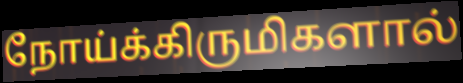
நோய்க்கிருமிகளால்